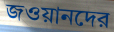
জওয়ানদের